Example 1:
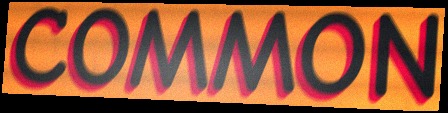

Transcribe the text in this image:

COMMON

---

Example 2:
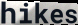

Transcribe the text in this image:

hikes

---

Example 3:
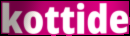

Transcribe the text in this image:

kottide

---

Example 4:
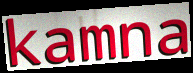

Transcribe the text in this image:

kamna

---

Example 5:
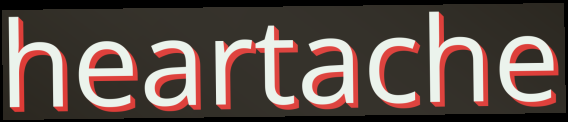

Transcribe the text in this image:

heartache